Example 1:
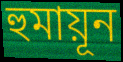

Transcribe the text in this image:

হুমায়ূন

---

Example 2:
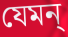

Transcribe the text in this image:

যেমন্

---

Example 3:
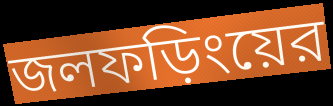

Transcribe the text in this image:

জলফড়িংয়ের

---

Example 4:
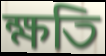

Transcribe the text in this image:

ক্ষতি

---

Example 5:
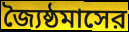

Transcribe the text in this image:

জ্যৈষ্ঠমাসের